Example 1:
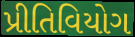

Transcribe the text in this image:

પ્રીતિવિયોગ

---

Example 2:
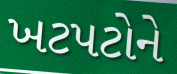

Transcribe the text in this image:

ખટપટોને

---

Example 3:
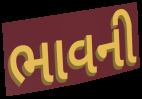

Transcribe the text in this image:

ભાવની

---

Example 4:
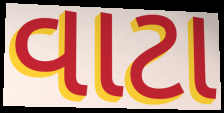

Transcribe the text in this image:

વાટા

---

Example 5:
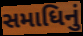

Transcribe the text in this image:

સમાધિનું